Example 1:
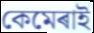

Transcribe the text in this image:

কেমেৰাই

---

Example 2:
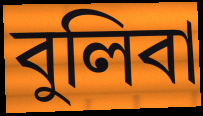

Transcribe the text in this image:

বুলিবা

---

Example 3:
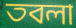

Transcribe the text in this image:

তবলা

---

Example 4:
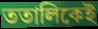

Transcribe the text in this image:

ততালিকেই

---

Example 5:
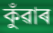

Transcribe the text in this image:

কুঁৱাৰ